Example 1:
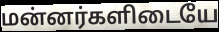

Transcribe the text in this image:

மன்னர்களிடையே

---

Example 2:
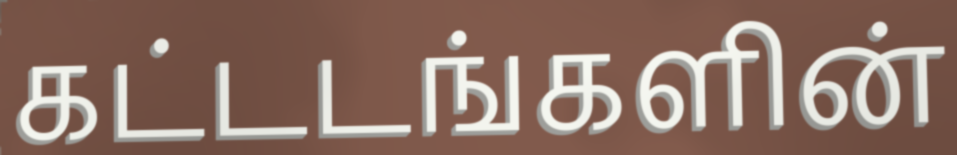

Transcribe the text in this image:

கட்டடங்களின்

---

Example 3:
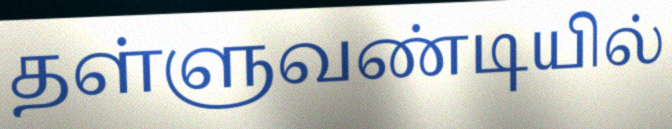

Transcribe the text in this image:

தள்ளுவண்டியில்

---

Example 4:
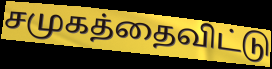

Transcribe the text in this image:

சமுகத்தைவிட்டு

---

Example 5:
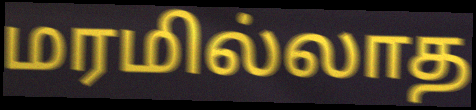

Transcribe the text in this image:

மரமில்லாத